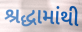
શ્રદ્ધામાંથી